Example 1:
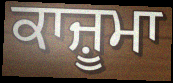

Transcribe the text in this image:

ਕਾਜ਼ੂਮਾ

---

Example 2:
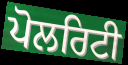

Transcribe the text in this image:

ਪੋਲਰਿਟੀ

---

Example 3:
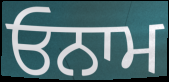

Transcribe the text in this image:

ਓਨਾਮ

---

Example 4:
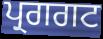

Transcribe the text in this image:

ਪ੍ਰਗਗਟ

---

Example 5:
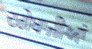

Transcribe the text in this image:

ਦਗੇਬਾਜੀਆਂ